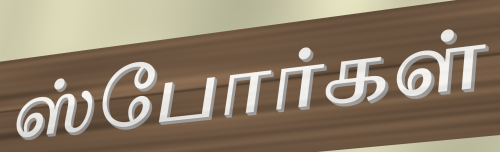
ஸ்போர்கள்